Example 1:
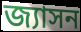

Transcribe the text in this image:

জ্যাসন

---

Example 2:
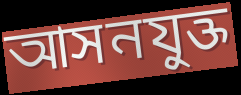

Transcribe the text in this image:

আসনযুক্ত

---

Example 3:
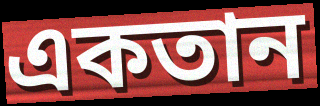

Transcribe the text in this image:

একতান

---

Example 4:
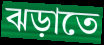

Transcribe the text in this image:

ঝড়াতে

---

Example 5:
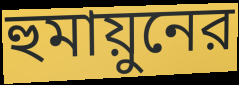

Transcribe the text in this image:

হুমায়ুনের